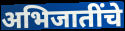
अभिजातींचे